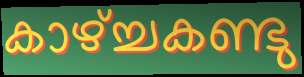
കാഴ്ച്ചകണ്ടു